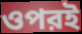
ওপরই